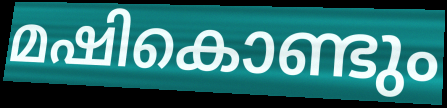
മഷികൊണ്ടും